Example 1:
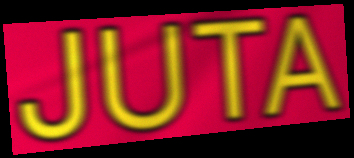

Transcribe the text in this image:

JUTA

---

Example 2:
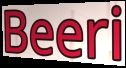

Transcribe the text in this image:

Beeri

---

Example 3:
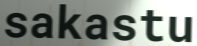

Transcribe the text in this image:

sakastu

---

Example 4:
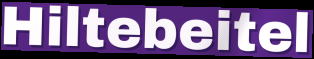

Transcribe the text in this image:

Hiltebeitel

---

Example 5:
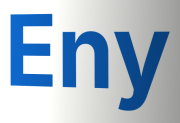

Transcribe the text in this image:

Eny